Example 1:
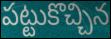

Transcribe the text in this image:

పట్టుకొచ్చిన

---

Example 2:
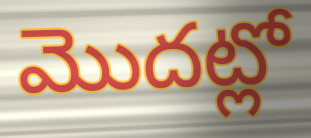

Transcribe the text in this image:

మొదట్లో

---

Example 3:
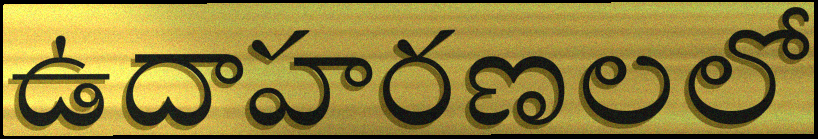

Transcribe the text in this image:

ఉదాహరణలలో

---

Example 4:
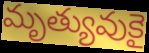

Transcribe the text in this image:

మృత్యువుకై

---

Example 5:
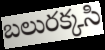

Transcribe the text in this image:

బలురక్కసి